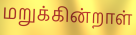
மறுக்கின்றாள்